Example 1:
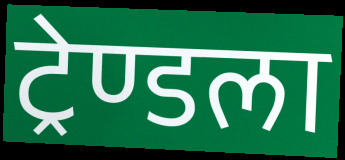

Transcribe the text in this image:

ट्रेण्डला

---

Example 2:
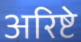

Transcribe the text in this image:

अरिष्टे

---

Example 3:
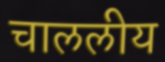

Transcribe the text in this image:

चाललीय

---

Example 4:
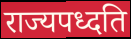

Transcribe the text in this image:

राज्यपध्दति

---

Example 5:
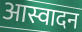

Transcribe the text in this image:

आस्वादन